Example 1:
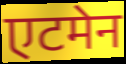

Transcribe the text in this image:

एटमेन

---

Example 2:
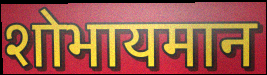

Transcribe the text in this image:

शोभायमान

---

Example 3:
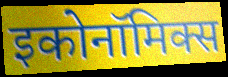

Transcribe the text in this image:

इकोनॉमिक्स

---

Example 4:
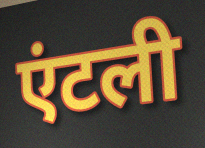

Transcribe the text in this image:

एंटली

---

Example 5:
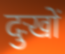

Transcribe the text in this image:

दुःखों